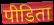
पीडिता